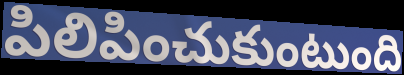
పిలిపించుకుంటుంది